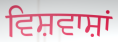
ਵਿਸ਼ਵਾਸ਼ਾਂ